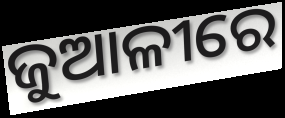
ଜୁଆଳୀରେ